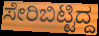
ಸೇರಿಬಿಟ್ಟಿದ್ದ